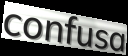
confusa